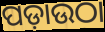
ପଡ଼ାଉଠା